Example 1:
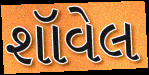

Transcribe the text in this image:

શૉવેલ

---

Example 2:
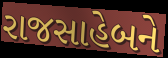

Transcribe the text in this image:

રાજસાહેબને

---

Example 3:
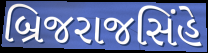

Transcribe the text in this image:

બ્રિજરાજસિંહે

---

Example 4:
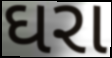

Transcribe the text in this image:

ઘરા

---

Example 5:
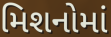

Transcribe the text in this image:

મિશનોમાં